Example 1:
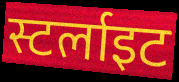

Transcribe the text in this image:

स्टर्लाइट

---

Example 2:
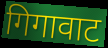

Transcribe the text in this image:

गिगावाट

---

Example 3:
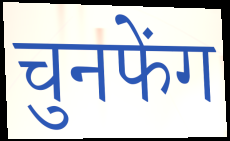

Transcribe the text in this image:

चुनफेंग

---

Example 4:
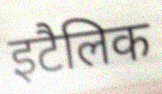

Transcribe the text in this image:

इटैलिक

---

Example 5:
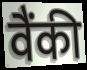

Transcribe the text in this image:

वैंकी